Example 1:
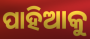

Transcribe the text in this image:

ପାହିଆକୁ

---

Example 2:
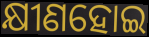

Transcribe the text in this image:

କ୍ଷୀଣହୋଇ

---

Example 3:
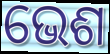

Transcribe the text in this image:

ଭେଶ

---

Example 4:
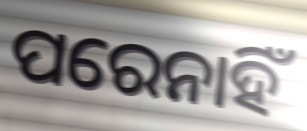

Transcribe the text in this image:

ପରେନାହିଁ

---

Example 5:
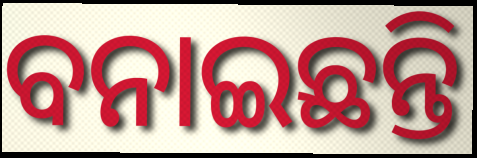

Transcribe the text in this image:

ବନାଇଛନ୍ତି